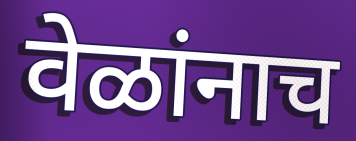
वेळांनाच